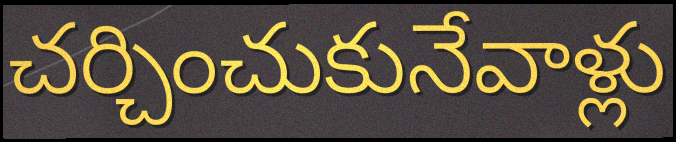
చర్చించుకునేవాళ్లు